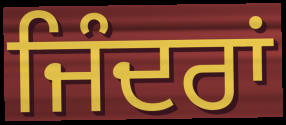
ਜਿੰਦਰਾਂ